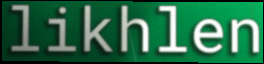
likhlen